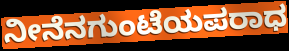
ನೀನೆನಗುಂಟೆಯಪರಾಧ